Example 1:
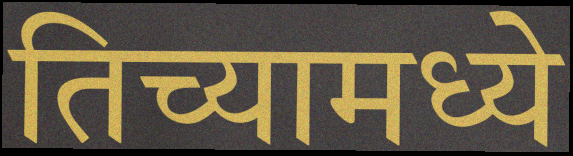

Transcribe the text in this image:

तिच्यामध्ये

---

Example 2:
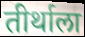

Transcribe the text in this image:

तीर्थाला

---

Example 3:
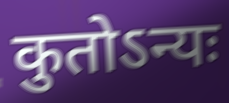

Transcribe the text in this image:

कुतोऽन्यः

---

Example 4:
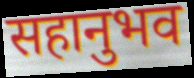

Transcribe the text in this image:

सहानुभव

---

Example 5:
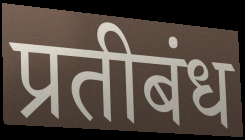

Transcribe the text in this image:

प्रतीबंध